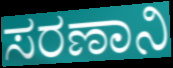
ಸರಣಾನಿ